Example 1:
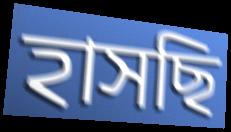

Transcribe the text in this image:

হাসছি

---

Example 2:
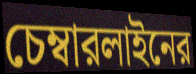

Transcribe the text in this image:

চেম্বারলাইনের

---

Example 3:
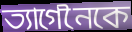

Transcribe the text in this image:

ত্যাগেনৈকে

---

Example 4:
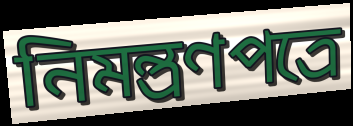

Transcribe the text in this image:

নিমন্ত্রণপত্রে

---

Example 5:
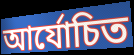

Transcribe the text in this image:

আর্যোচিত